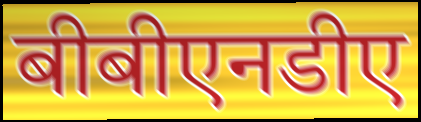
बीबीएनडीए